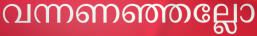
വന്നണഞ്ഞല്ലോ